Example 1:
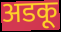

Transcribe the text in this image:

अडकू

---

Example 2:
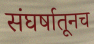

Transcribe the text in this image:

संघर्षातूनच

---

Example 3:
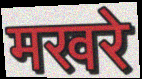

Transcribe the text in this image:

मखरे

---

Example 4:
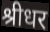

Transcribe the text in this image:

श्रीधर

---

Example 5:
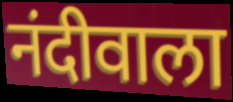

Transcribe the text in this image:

नंदीवाला